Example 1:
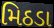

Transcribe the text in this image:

મિઠડા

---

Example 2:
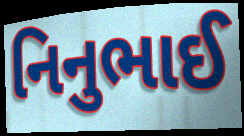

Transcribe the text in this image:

નિનુભાઈ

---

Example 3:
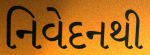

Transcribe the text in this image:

નિવેદનથી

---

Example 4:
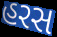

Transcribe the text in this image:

હરસ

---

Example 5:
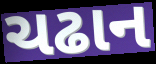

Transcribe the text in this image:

ચઢાન